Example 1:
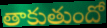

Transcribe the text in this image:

తాకుతుందో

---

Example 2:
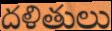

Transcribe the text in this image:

దళితులు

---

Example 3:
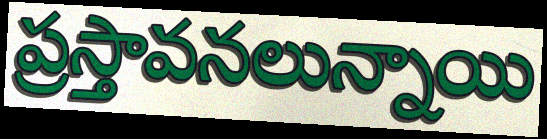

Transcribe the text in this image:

ప్రస్తావనలున్నాయి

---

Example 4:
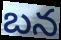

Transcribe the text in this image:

బన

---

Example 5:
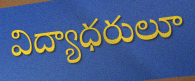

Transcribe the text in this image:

విద్యాధరులూ